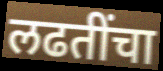
लढतींचा